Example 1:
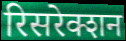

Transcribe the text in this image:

रिसरेक्शन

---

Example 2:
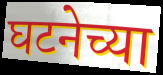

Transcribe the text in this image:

घटनेच्या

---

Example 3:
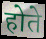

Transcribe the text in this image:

होते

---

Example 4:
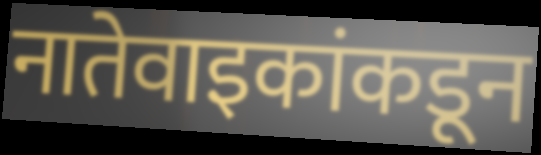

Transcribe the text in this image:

नातेवाइकांकडून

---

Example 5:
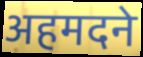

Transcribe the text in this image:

अहमदने